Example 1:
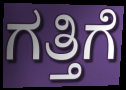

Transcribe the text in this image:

ಗತ್ತಿಗೆ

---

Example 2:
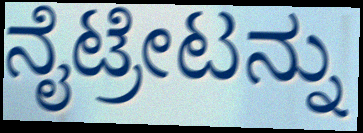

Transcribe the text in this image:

ನೈಟ್ರೇಟನ್ನು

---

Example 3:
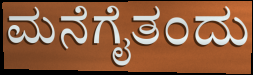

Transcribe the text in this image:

ಮನೆಗೈತಂದು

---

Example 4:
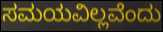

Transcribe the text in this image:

ಸಮಯವಿಲ್ಲವೆಂದು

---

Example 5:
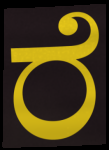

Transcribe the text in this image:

ರೆ